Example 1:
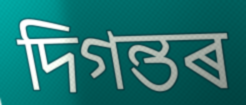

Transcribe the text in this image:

দিগন্তৰ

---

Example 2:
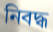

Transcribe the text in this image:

নিবদ্ধ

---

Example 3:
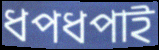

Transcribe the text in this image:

ধপধপাই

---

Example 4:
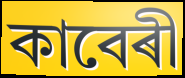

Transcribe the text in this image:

কাবেৰী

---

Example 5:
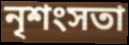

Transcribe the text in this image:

নৃশংসতা